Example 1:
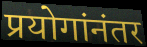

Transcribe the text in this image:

प्रयोगांनंतर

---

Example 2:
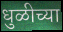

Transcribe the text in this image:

धुळीच्या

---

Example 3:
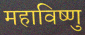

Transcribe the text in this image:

महाविष्णु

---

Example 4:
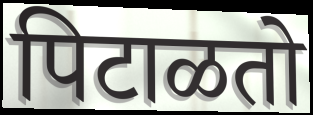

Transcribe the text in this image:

पिटाळतो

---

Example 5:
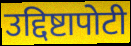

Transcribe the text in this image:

उद्दिष्टापोटी